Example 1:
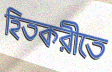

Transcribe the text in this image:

হিতকরীতে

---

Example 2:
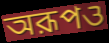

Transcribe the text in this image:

অরূপও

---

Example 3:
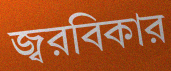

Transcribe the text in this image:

জ্বরবিকার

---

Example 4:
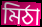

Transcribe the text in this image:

মিঠা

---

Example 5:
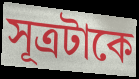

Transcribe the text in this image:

সূত্রটাকে